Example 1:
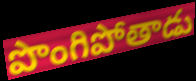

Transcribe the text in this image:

పొంగిపోతాడు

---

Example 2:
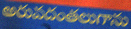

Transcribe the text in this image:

అరువదంతలుగాను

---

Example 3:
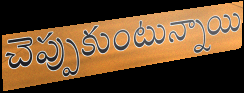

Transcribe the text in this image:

చెప్పుకుంటున్నాయి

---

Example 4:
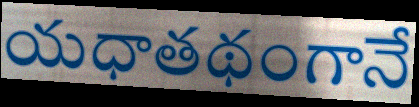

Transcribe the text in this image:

యధాతథంగానే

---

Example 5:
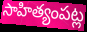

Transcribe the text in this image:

సాహిత్యంపట్ల